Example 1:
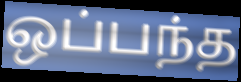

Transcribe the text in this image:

ஒப்பந்த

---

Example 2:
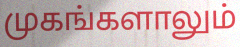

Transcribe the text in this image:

முகங்களாலும்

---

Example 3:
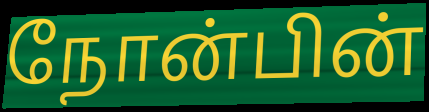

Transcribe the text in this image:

நோன்பின்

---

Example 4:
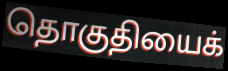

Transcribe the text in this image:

தொகுதியைக்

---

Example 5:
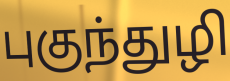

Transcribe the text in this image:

புகுந்துழி